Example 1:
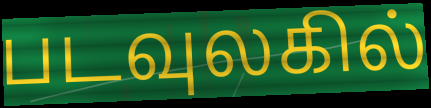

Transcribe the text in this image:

படவுலகில்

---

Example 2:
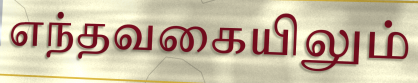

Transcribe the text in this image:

எந்தவகையிலும்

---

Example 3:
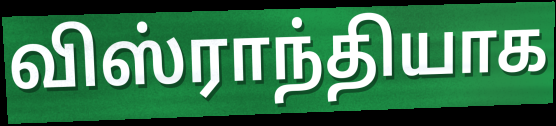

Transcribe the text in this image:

விஸ்ராந்தியாக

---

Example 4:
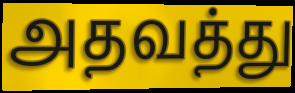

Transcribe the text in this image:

அதவத்து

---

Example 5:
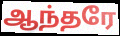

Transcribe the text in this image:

ஆந்தரே